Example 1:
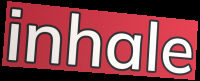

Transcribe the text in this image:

inhale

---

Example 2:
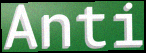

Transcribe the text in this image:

Anti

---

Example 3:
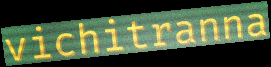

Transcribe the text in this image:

vichitranna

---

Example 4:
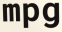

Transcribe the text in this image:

mpg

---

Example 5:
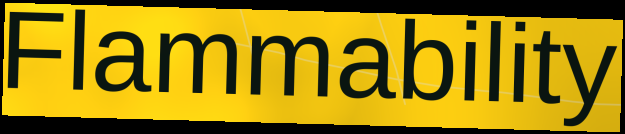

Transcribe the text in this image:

Flammability